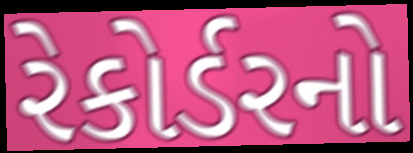
રેકોર્ડરનો